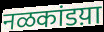
नळकांडय़ा